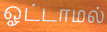
ஓட்டாமல்